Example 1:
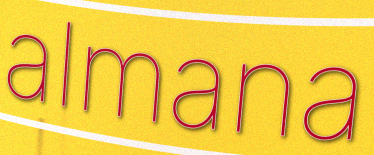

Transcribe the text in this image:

almana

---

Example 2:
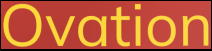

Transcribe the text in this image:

Ovation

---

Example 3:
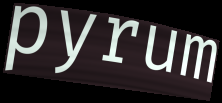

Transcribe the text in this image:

pyrum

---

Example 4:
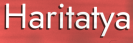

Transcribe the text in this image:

Haritatya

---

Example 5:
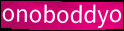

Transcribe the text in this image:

onoboddyo